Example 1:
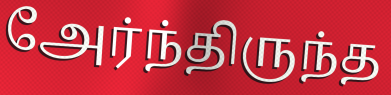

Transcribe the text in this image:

அேர்ந்திருந்த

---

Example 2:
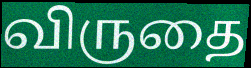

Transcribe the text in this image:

விருதை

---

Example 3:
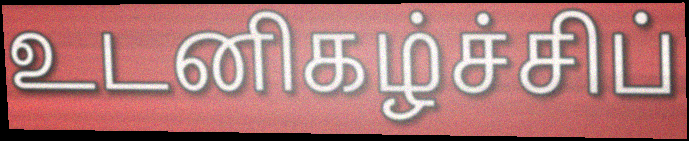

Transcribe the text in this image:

உடனிகழ்ச்சிப்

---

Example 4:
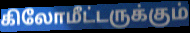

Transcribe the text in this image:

கிலோமீட்டருக்கும்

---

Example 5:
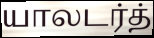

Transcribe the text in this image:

யாலடர்த்